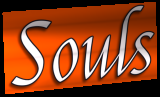
Souls